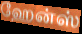
ஹேன்ஸ்